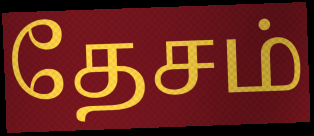
தேசம்